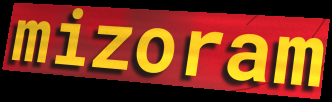
mizoram